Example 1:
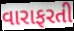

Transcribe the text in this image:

વારાફરતી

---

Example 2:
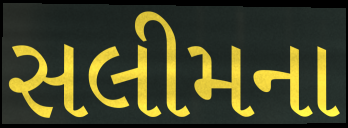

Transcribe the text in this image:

સલીમના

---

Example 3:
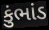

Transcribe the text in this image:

કુંભાંડ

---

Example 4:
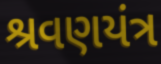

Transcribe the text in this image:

શ્રવણયંત્ર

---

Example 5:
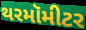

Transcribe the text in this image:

થરમૉમીટર